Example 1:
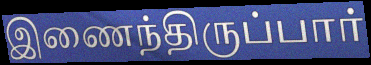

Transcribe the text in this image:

இணைந்திருப்பார்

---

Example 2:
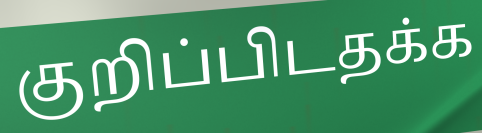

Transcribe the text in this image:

குறிப்பிடதக்க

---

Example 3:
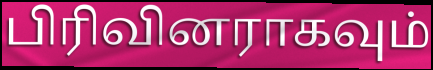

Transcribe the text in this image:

பிரிவினராகவும்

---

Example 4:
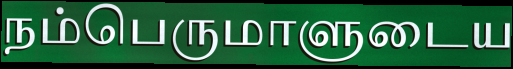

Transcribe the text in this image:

நம்பெருமாளுடைய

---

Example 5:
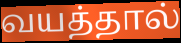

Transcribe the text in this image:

வயத்தால்